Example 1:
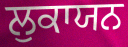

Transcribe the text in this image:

ਲੁਕਾਯਨ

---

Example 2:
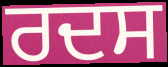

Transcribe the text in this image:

ਰਦਸ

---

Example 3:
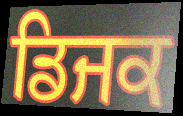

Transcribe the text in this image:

ਡਿਜਕ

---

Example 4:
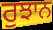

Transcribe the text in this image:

ਰੁਝਾਨ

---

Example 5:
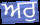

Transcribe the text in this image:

ਅਰੁ